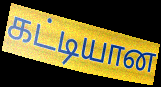
கட்டியான